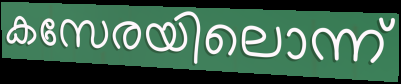
കസേരയിലൊന്ന്